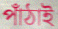
পাঁঠাই